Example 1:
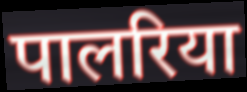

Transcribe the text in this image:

पालरिया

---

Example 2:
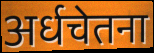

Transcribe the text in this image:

अर्धचेतना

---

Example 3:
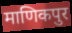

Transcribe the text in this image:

माणिकपुर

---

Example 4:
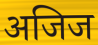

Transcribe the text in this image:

अजिज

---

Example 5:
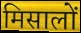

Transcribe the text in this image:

मिसालों